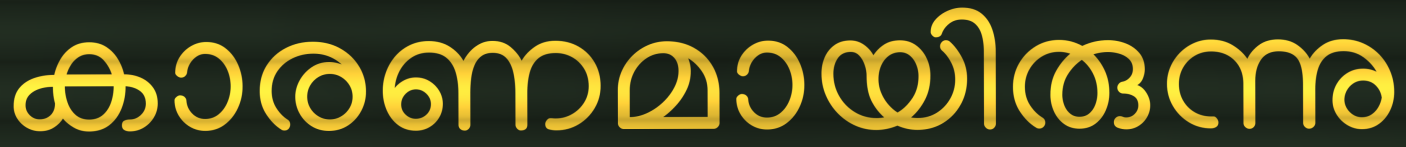
കാരണമായിരുന്നു